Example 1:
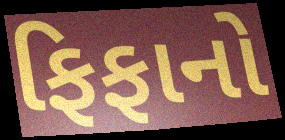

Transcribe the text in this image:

ફિફાનો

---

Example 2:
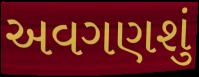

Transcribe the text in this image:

અવગણશું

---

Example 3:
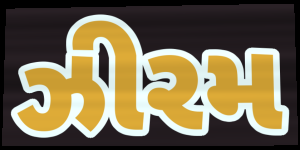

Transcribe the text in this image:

ઝીરમ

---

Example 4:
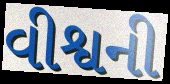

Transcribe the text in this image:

વીશ્વની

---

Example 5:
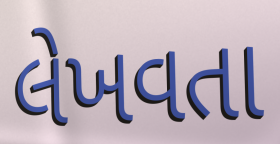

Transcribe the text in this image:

લેખવતા